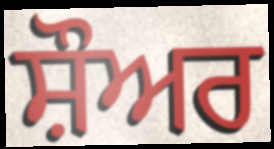
ਸ਼ੌਅਰ